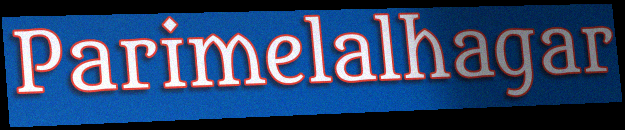
Parimelalhagar